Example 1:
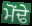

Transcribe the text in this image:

ਮੋਂਢੇ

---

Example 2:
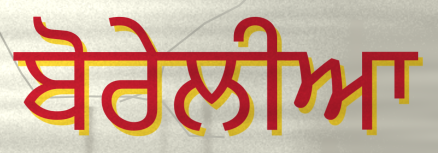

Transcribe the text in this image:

ਬੋਰੇਲੀਆ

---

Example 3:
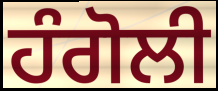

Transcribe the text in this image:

ਹੰਗੋਲੀ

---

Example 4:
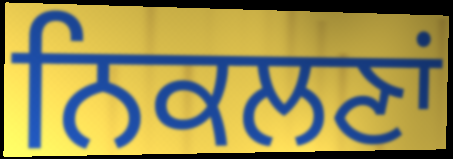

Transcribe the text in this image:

ਨਿਕਲਣਾਂ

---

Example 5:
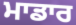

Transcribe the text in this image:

ਮਾਡਾਰ